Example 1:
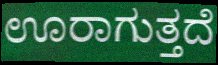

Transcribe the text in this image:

ಊರಾಗುತ್ತದೆ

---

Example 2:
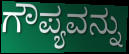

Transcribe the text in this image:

ಗೌಪ್ಯವನ್ನು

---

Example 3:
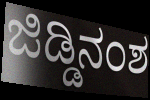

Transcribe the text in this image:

ಜಿಡ್ಡಿನಂಶ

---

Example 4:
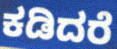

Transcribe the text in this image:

ಕಡಿದರೆ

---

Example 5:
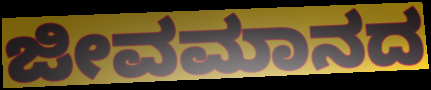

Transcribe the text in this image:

ಜೀವಮಾನದ